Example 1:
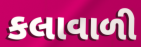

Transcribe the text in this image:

કલાવાળી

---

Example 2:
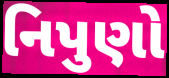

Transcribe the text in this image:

નિપુણો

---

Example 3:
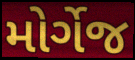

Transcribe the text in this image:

મોર્ગેજ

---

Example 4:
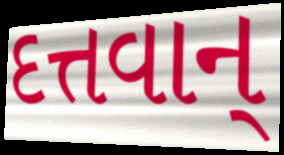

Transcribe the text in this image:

દત્તવાન્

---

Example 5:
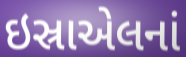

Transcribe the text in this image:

ઇસ્રાએલનાં